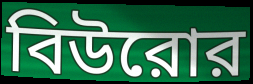
বিউরোর